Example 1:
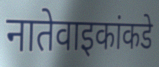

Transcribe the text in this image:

नातेवाइकांकडे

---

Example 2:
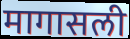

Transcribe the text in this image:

मागासली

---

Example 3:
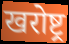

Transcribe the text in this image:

खरोष्ट्र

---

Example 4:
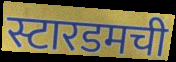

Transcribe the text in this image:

स्टारडमची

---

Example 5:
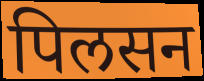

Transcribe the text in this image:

पिलसन